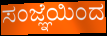
ಸಂಜ್ಞೆಯಿಂದ